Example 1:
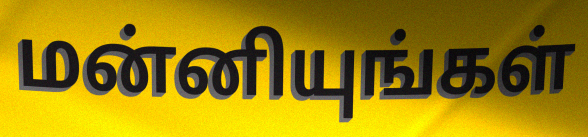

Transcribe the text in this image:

மன்னியுங்கள்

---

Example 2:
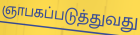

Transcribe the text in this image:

ஞாபகப்படுத்துவது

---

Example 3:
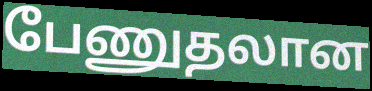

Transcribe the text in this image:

பேணுதலான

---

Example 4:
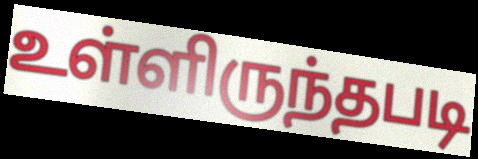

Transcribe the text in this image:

உள்ளிருந்தபடி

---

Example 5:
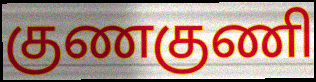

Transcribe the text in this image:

குணகுணி